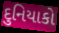
દુનિયાકો